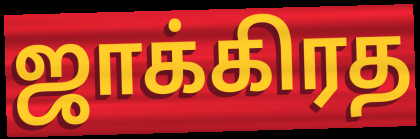
ஜாக்கிரத